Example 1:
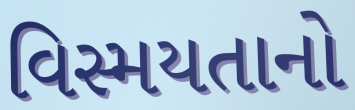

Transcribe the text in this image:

વિસ્મયતાનો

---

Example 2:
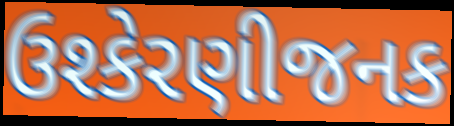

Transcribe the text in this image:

ઉશ્કેરણીજનક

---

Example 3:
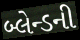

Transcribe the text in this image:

બ્લેન્ડની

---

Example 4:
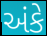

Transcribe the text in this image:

અંકે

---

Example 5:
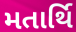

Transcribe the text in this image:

મતાર્થિ